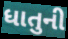
ધાતુની